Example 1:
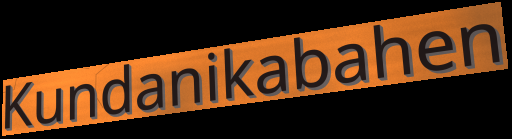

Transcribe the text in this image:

Kundanikabahen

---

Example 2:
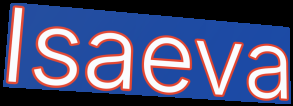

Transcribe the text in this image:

Isaeva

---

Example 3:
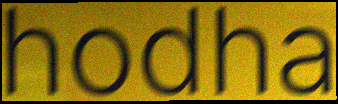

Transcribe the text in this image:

hodha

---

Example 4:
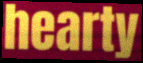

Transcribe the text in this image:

hearty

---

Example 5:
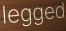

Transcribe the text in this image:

legged